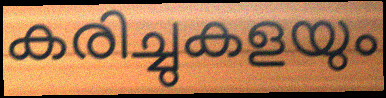
കരിച്ചുകളയും